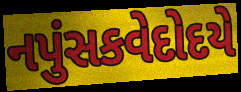
નપુંસકવેદોદયે